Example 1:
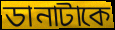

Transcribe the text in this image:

ডানাটাকে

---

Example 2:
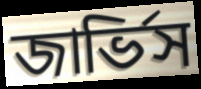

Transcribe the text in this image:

জার্ভিস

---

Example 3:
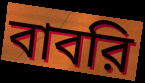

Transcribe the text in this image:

বাবরি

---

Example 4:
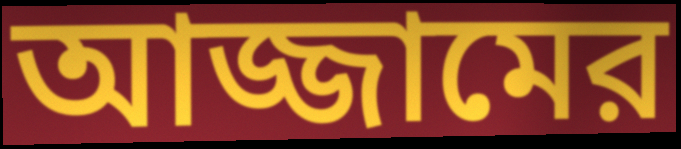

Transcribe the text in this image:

আজ্জামের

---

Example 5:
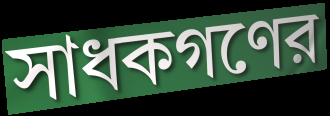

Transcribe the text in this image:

সাধকগণের